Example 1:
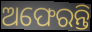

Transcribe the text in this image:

ଅଫେରନ୍ତି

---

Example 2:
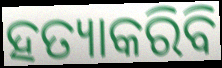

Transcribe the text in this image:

ହତ୍ୟାକରିବି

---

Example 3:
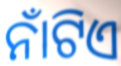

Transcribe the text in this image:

ନାଁଟିଏ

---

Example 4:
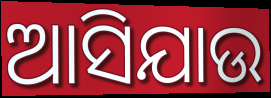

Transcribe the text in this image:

ଆସିଯାଉ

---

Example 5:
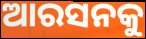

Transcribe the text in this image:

ଆରସନକୁ